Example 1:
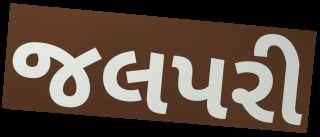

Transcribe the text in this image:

જલપરી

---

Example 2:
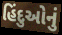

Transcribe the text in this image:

હિંદુઓનું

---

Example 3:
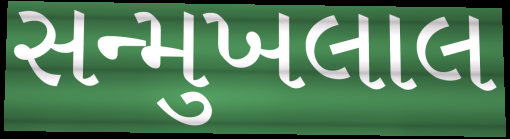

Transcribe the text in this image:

સન્મુખલાલ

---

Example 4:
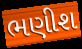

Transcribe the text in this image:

ભણીશ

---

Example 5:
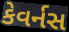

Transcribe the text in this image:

કેવર્નસ